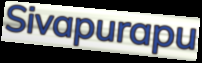
Sivapurapu